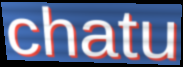
chatu